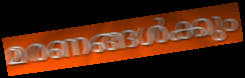
മരണങ്ങൾക്കും